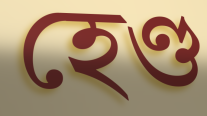
হেণ্ড